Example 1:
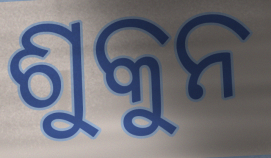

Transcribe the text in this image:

ଶୁକୁନ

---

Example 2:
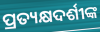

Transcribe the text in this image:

ପ୍ରତ୍ୟକ୍ଷଦର୍ଶୀଙ୍କ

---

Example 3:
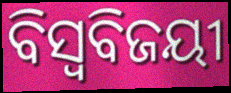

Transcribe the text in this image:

ବିସ୍ଵବିଜୟୀ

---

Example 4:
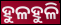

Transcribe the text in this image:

ହୁଳହୁଳି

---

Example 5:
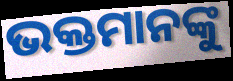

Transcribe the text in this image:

ଭକ୍ତମାନଙ୍କୁ